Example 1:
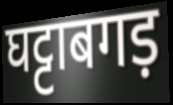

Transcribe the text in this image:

घट्टाबगड़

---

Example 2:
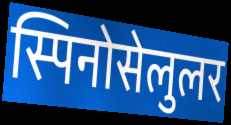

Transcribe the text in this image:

स्पिनोसेलुलर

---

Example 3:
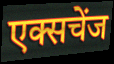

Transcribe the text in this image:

एक्सचेंज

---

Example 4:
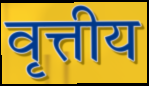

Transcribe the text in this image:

वृत्तीय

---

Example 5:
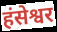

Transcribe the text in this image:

हंसेश्वर